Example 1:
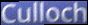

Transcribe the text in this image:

Culloch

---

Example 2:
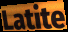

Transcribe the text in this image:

Latite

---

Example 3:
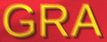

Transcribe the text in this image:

GRA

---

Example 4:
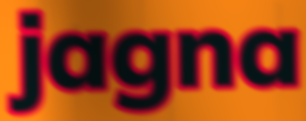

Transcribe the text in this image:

jagna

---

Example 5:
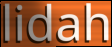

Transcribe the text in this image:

lidah